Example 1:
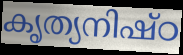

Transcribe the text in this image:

കൃത്യനിഷ്ഠ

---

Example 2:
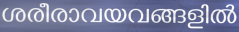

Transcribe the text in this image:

ശരീരാവയവങ്ങളിൽ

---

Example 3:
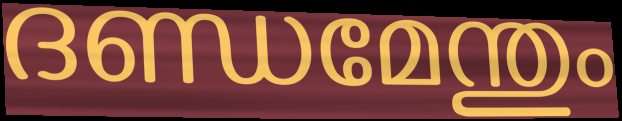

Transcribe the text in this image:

ദണ്ഡമേന്തും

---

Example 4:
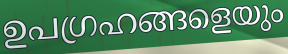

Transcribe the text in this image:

ഉപഗ്രഹങ്ങളെയും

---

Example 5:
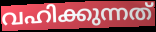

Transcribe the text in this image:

വഹിക്കുന്നത്